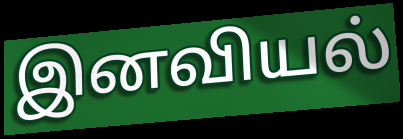
இனவியல்